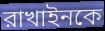
রাখাইনকে